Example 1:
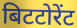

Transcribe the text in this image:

बिटटोरेंट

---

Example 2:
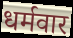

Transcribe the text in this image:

धर्मवार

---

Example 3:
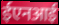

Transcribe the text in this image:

ईएनआई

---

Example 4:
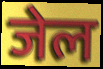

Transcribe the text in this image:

जेल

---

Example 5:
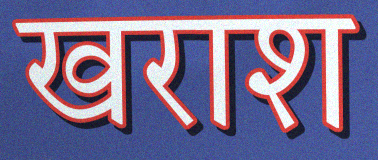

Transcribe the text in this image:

खराश